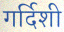
गर्दिशी